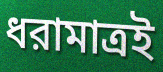
ধরামাত্রই